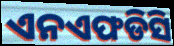
ଏନଏଫଡିସି